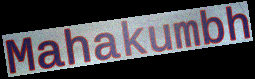
Mahakumbh